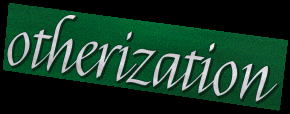
otherization